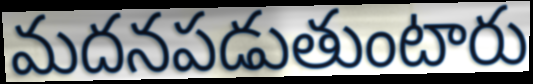
మదనపడుతుంటారు